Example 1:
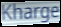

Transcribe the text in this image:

Kharge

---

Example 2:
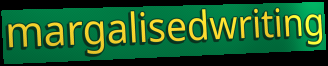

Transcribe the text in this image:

margalisedwriting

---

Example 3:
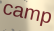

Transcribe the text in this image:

camp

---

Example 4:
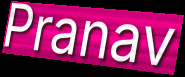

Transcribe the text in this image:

Pranav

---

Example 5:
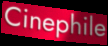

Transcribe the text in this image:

Cinephile